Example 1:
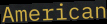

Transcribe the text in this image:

American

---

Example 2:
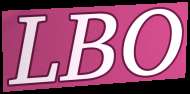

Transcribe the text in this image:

LBO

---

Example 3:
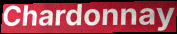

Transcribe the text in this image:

Chardonnay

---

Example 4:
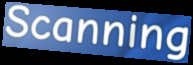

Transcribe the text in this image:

Scanning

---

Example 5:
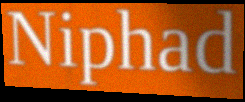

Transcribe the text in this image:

Niphad